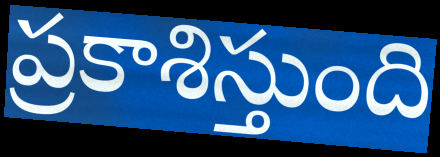
ప్రకాశిస్తుంది